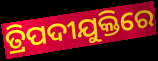
ତ୍ରିପଦୀଯୁକ୍ତିରେ